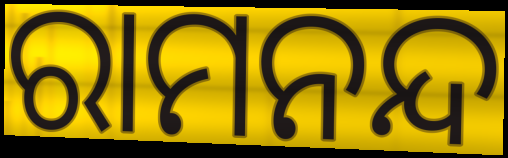
ରାମନନ୍ଦ